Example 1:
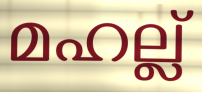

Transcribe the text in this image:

മഹല്ല്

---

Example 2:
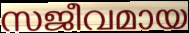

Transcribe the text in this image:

സജീവമായ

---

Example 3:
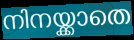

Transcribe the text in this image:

നിനയ്ക്കാതെ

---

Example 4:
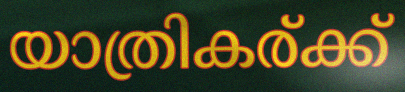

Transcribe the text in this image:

യാത്രികര്ക്ക്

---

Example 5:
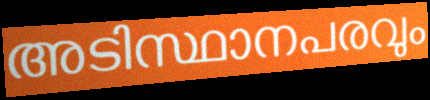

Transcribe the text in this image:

അടിസ്ഥാനപരവും